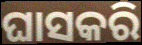
ଘାସକରି